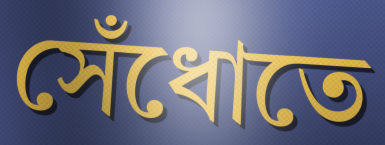
সেঁধোতে